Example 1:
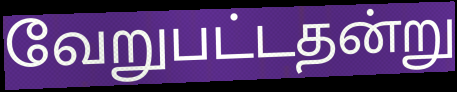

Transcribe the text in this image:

வேறுபட்டதன்று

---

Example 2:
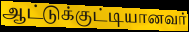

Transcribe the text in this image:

ஆட்டுக்குட்டியானவர்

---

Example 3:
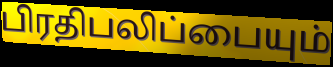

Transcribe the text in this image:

பிரதிபலிப்பையும்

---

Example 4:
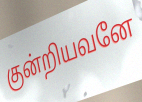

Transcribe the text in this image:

குன்றியவனே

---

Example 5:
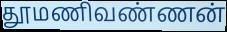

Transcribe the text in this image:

தூமணிவண்ணன்